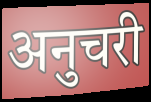
अनुचरी